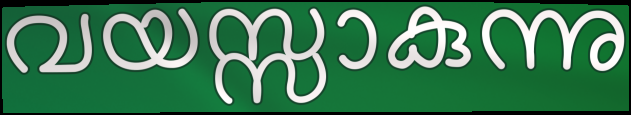
വയസ്സാകുന്നു